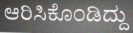
ಆರಿಸಿಕೊಂಡಿದ್ದು